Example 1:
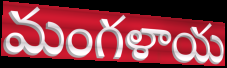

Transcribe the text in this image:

మంగళాయ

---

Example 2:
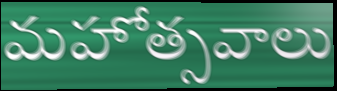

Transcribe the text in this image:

మహోత్సవాలు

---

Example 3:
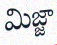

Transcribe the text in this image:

మిజ్జా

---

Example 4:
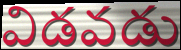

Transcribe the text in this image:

విడవడు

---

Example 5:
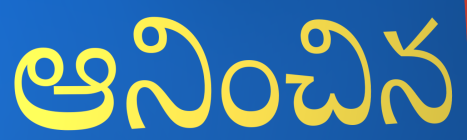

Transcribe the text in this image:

ఆనించిన